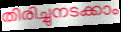
തിരിച്ചുനടക്കാം